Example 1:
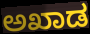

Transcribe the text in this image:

ಅಖಾಡ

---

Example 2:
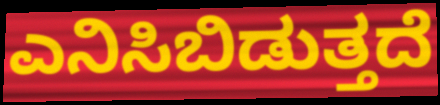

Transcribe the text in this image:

ಎನಿಸಿಬಿಡುತ್ತದೆ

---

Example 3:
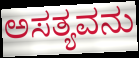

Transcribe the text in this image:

ಅಸತ್ಯವನು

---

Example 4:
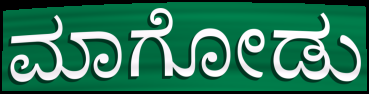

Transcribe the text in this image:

ಮಾಗೋಡು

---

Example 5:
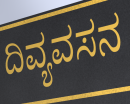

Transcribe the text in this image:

ದಿವ್ಯವಸನ